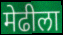
मेढीला